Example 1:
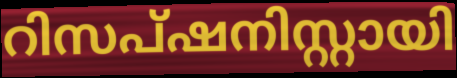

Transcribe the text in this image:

റിസപ്ഷനിസ്റ്റായി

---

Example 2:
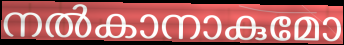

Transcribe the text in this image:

നൽകാനാകുമോ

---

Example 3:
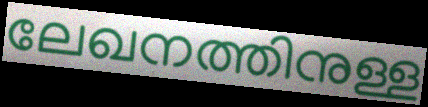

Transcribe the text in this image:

ലേഖനത്തിനുള്ള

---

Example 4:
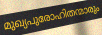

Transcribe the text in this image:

മുഖ്യപുരോഹിതന്മാരും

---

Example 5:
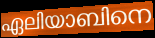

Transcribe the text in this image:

ഏലിയാബിനെ